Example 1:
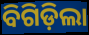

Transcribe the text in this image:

ବିଗିଡ଼ିଲା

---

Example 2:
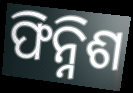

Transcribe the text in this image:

ଫିନ୍ନିଶ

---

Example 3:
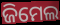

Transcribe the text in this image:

ଜିମେଲ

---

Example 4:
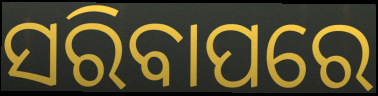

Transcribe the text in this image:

ସରିବାପରେ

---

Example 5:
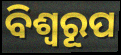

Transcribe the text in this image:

ବିଶ୍ୱରୂପ